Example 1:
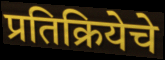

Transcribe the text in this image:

प्रतिक्रियेचे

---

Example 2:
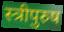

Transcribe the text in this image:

स्त्रीपुरुष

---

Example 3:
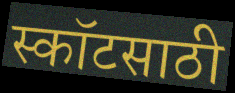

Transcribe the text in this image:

स्कॉटसाठी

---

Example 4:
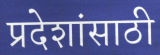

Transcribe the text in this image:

प्रदेशांसाठी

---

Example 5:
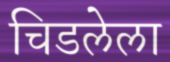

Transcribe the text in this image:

चिडलेला